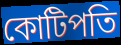
কোটিপতি